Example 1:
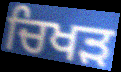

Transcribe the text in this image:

ਚਿਖੜ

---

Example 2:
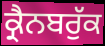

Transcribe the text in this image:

ਕ੍ਰੈਨਬਰੁੱਕ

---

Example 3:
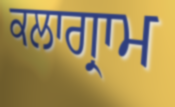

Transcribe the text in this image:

ਕਲਾਗ੍ਰਾਮ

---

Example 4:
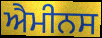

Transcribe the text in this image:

ਐਮੀਨਸ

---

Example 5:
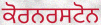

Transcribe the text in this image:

ਕੋਰਨਰਸਟੋਨ